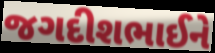
જગદીશભાઈને